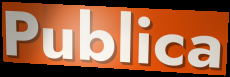
Publica